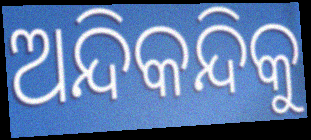
ଅନ୍ଦିକନ୍ଦିକୁ